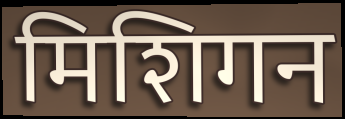
मिशिगन